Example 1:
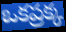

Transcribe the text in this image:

ఒకప్రక్క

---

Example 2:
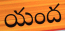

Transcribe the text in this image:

యంద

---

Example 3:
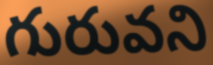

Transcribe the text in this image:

గురువని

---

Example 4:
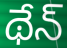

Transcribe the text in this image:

థేన్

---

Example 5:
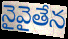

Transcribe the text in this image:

నైవైతేన